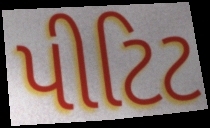
પીટિટ